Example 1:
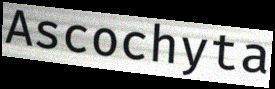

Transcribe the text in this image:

Ascochyta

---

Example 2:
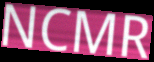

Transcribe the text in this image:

NCMR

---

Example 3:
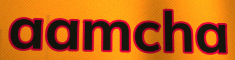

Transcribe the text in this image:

aamcha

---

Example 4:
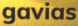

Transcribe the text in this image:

gavias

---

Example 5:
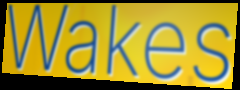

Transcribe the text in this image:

Wakes